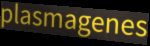
plasmagenes